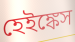
হেইঙ্কেস